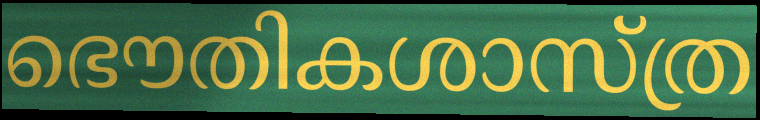
ഭൌതികശാസ്ത്ര